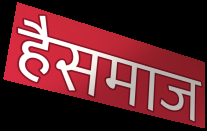
हैसमाज